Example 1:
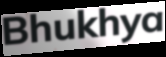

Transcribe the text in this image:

Bhukhya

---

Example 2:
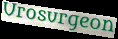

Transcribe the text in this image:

Urosurgeon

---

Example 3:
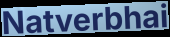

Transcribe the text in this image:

Natverbhai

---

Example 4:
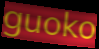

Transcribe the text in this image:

guoko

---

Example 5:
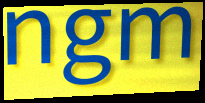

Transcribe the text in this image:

ngm